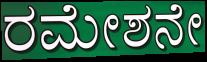
ರಮೇಶನೇ